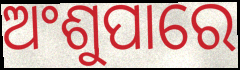
ଅଂଶୁପାରେ